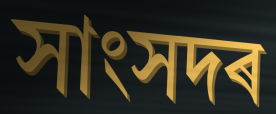
সাংসদৰ